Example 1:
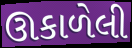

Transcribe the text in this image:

ઊકાળેલી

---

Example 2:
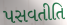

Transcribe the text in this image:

પસવતીતિ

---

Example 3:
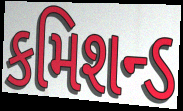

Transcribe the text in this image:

કમિશન્ડ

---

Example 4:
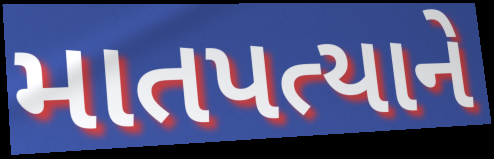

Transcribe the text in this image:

માતપત્યાને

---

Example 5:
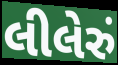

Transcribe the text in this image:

લીલેરું